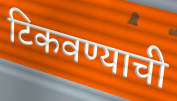
टिकवण्याची